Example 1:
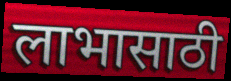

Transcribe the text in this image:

लाभासाठी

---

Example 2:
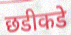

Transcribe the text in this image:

छडीकडे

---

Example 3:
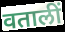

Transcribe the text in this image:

वतालीं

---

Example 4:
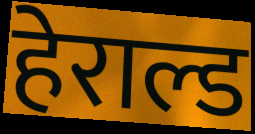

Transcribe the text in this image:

हेराल्ड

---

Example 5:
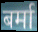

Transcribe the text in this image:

बर्मा